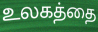
உலகத்தை